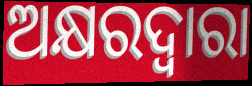
ଅକ୍ଷରଦ୍ଵାରା